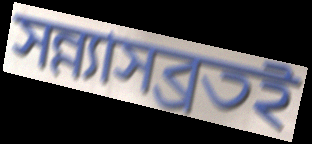
সন্ন্যাসব্রতই